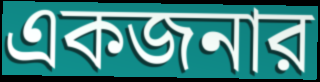
একজনার